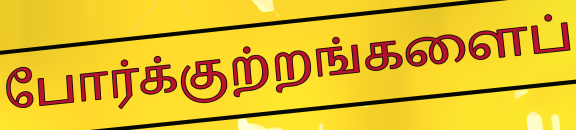
போர்க்குற்றங்களைப்